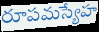
రూపమస్యేహ